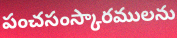
పంచసంస్కారములను